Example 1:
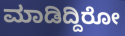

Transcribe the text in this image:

ಮಾಡಿದ್ದಿರೋ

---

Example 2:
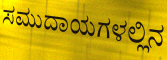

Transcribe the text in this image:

ಸಮುದಾಯಗಳಲ್ಲಿನ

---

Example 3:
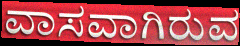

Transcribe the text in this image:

ವಾಸವಾಗಿರುವ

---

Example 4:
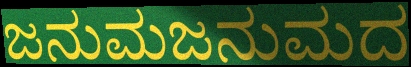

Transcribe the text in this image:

ಜನುಮಜನುಮದ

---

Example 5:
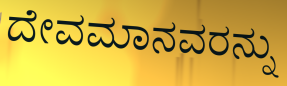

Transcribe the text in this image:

ದೇವಮಾನವರನ್ನು